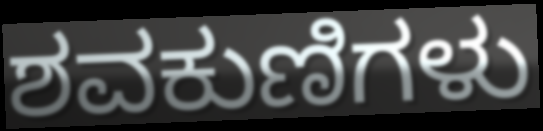
ಶವಕುಣಿಗಳು